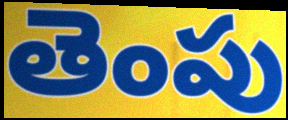
తెంపు